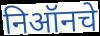
निऑनचे